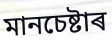
মানচেষ্টাৰ